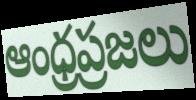
ఆంధ్రప్రజలు